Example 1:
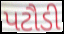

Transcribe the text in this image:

પટૌડી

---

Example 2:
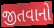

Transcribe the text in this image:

જીતવાનો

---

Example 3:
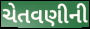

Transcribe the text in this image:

ચેતવણીની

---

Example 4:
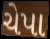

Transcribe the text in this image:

ચેપા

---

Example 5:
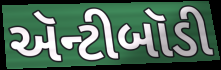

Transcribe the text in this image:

ઍન્ટીબૉડી